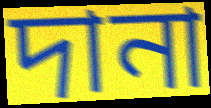
দানা